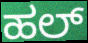
ಹಲ್